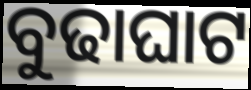
ବୁଢାଘାଟ